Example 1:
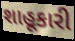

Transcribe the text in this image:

શાહૂકારી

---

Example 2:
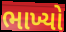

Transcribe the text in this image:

ભાખ્યો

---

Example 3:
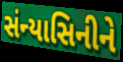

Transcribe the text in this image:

સંન્યાસિનીને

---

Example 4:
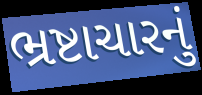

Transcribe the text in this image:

ભ્રષ્ટાચારનું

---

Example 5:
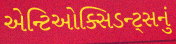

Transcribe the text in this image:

એન્ટિઓક્સિડન્ટ્સનું